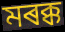
মৰক্ক